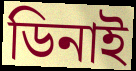
ডিনাই